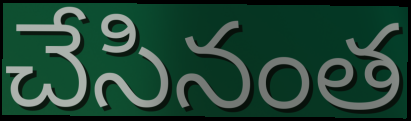
చేసినంత